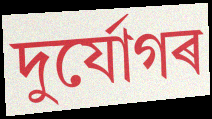
দুৰ্যোগৰ